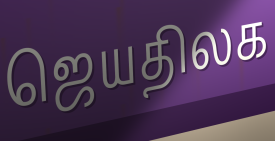
ஜெயதிலக